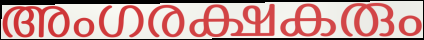
അംഗരക്ഷകരും